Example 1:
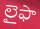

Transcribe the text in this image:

లైఫా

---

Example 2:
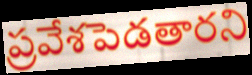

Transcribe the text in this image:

ప్రవేశపెడతారని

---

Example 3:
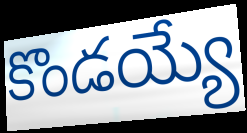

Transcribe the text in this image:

కొండయ్యే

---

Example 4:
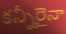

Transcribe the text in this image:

కన్నీరైనా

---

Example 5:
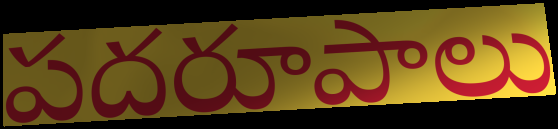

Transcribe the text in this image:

పదరూపాలు